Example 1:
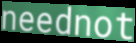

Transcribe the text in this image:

neednot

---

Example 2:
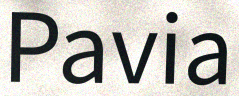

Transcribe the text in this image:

Pavia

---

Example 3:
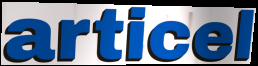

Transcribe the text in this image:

articel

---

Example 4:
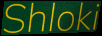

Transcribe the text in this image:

Shloki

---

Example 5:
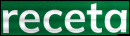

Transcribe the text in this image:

receta